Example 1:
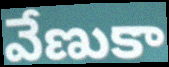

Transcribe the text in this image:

వేణుకా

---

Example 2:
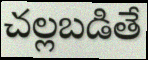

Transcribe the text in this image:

చల్లబడితే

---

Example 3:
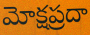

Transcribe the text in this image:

మోక్షప్రదా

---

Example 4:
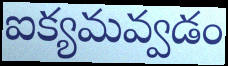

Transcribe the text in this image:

ఐక్యమవ్వడం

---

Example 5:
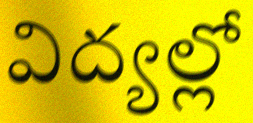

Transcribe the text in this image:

విద్యల్లో